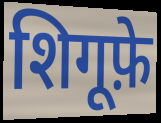
शिगूफ़े